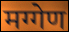
मग्गेण